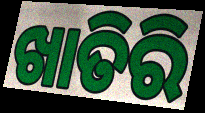
ଖାତିରି